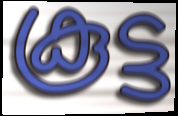
കൂട്ട